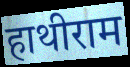
हाथीराम